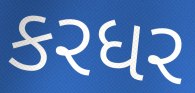
કરધર